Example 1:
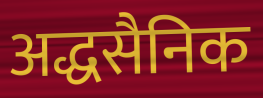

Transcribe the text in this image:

अद्धसैनिक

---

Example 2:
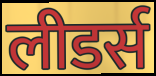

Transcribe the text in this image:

लीडर्स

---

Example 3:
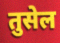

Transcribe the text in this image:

तुसेल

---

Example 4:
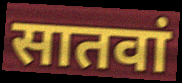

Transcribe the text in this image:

सातवां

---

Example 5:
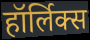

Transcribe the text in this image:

हॉर्लिक्स